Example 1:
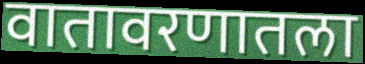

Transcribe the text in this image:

वातावरणातला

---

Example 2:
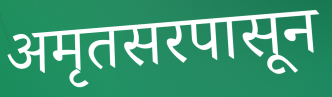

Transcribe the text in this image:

अमृतसरपासून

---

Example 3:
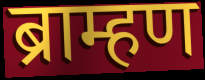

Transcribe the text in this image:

ब्राम्हण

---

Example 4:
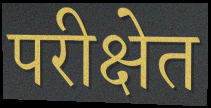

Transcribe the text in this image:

परीक्षेत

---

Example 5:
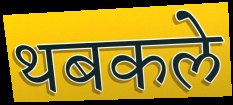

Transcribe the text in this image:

थबकले